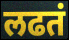
लढतं